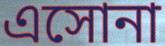
এসোনা